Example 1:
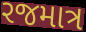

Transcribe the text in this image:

રજમાત્ર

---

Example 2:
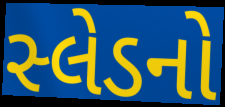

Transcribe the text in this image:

સ્લેડનો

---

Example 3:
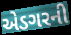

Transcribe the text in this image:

એડગરની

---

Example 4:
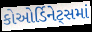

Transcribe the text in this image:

કોઓર્ડિનેટ્સમાં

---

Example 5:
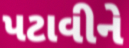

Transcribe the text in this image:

પટાવીને